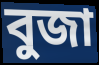
বুজা